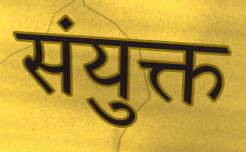
संयुक्त